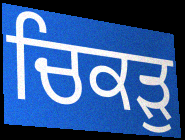
ਚਿਕੜੁ